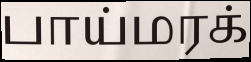
பாய்மரக்